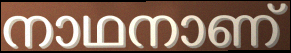
നാഥനാണ്